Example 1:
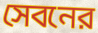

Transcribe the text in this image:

সেবনের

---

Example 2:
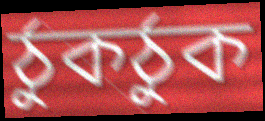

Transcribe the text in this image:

ঠুকঠুক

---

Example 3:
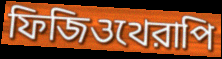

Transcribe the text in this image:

ফিজিওথেরাপি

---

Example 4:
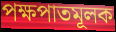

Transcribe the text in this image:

পক্ষপাতমূলক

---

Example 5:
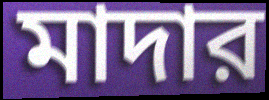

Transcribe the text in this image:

মাদার